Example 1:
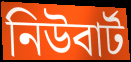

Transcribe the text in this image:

নিউবার্ট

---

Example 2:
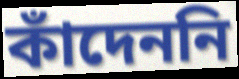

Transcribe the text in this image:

কাঁদেননি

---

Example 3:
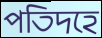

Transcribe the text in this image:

পতিদহে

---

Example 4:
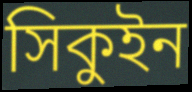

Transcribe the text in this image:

সিকুইন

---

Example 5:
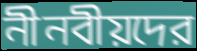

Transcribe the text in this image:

নীনবীয়দের